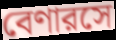
বেণারসে